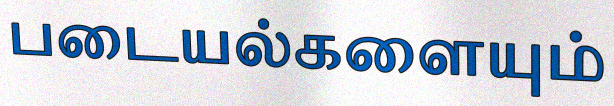
படையல்களையும்